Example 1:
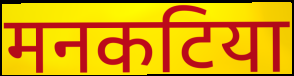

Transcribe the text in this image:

मनकटिया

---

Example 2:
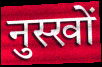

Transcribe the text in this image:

नुस्‍खों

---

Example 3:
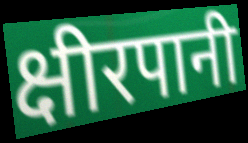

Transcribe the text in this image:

क्षीरपानी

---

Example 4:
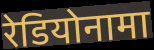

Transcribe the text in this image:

रेडियोनामा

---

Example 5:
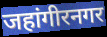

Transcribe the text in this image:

जहांगीरनगर